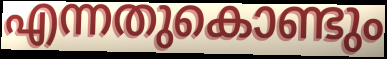
എന്നതുകൊണ്ടും